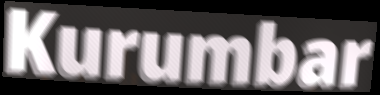
Kurumbar